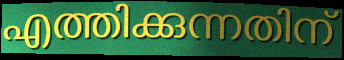
എത്തിക്കുന്നതിന്